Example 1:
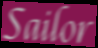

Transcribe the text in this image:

Sailor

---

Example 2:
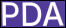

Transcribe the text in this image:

PDA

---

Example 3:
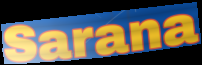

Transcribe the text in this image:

Sarana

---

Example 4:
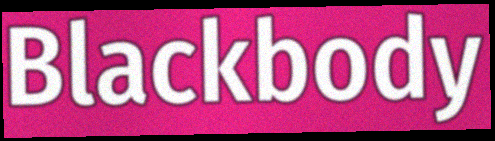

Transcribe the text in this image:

Blackbody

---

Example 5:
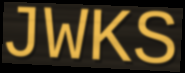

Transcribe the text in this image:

JWKS